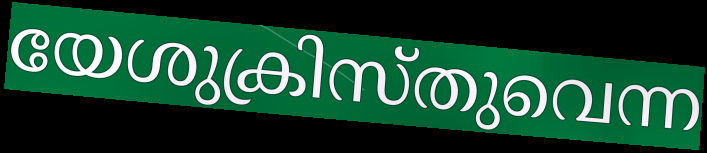
യേശുക്രിസ്തുവെന്ന